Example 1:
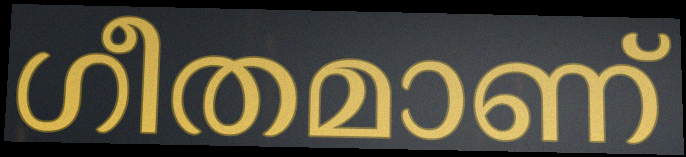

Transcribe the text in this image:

ഗീതമാണ്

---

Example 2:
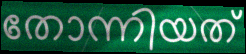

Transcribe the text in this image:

തോന്നിയത്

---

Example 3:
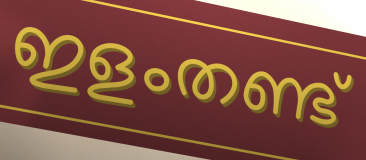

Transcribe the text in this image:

ഇളംതണ്ട്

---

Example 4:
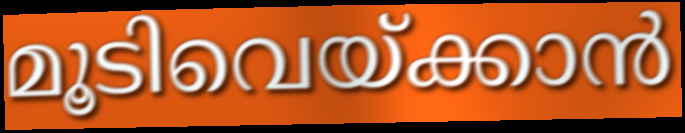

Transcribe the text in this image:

മൂടിവെയ്ക്കാൻ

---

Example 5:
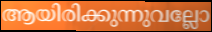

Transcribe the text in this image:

ആയിരിക്കുന്നുവല്ലോ